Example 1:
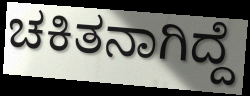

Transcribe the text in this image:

ಚಕಿತನಾಗಿದ್ದೆ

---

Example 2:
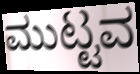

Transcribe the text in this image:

ಮುಟ್ಟವ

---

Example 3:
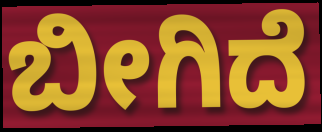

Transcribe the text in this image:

ಬೀಗಿದೆ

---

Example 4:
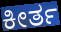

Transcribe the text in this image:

ಕೀರ್ತ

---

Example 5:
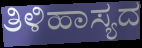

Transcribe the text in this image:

ತಿಳಿಹಾಸ್ಯದ